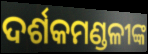
ଦର୍ଶକମଣ୍ଡଳୀଙ୍କ